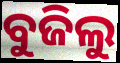
ବୁଜିଲୁ